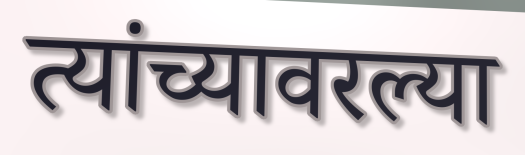
त्यांच्यावरल्या